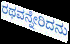
ರಥವನ್ನೇರಿದನು